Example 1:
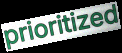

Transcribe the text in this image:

prioritized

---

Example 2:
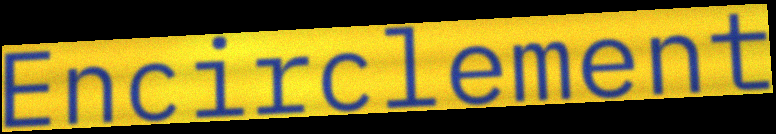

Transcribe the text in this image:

Encirclement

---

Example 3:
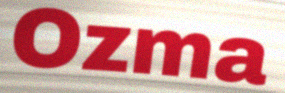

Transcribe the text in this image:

Ozma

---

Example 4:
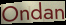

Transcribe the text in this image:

Ondan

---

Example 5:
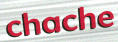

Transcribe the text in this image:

chache